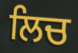
ਲਿਚ